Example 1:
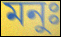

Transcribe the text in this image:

মনুঃ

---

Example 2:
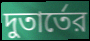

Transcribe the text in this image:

দুতার্তের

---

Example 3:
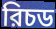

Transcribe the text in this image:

রিচড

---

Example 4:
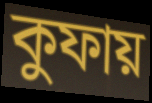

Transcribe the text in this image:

কুফায়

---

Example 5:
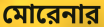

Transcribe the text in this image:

মোরেনার